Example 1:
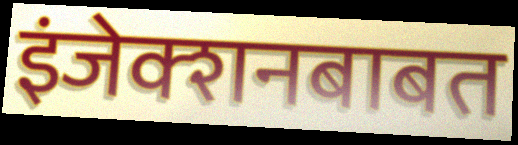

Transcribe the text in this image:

इंजेक्शनबाबत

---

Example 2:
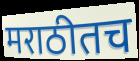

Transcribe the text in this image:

मराठीतच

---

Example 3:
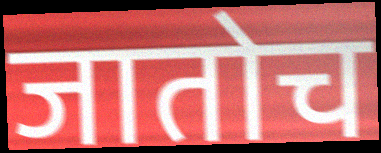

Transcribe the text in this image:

जातोच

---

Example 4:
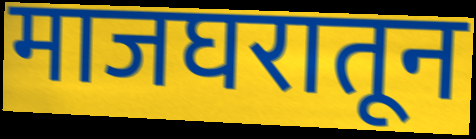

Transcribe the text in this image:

माजघरातून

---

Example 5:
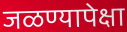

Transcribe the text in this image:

जळण्यापेक्षा